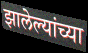
झालेल्यांच्या